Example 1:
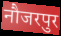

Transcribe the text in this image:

नौजरपुर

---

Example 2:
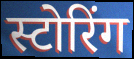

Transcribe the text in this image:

स्टोरिंग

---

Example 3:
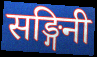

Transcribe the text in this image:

सङ्गिनी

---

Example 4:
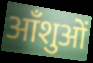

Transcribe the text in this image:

आँशुओं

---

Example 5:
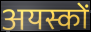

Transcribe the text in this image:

अयस्कों